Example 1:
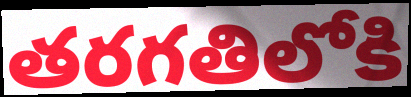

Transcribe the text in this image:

తరగతిలోకి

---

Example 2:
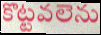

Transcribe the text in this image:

కొట్టవలెను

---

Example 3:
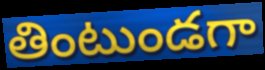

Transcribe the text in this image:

తింటుండగా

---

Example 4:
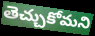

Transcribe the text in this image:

తెచ్చుకోమని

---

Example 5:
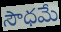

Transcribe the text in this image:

సౌధమే